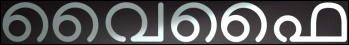
വൈഫൈ